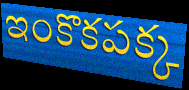
ఇంకొకపక్క